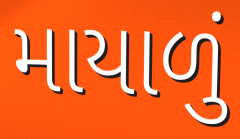
માયાળું